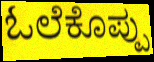
ಓಲೆಕೊಪ್ಪು